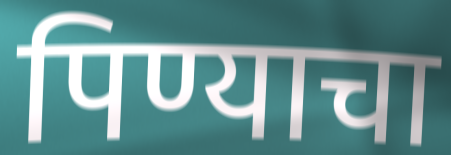
पिण्याचा